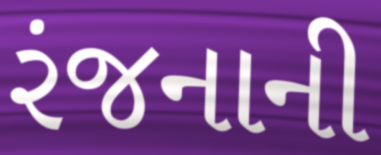
રંજનાની